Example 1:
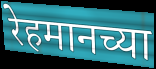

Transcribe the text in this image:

रेहमानच्या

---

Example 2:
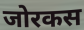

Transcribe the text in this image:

जोरकस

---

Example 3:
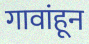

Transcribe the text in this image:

गावांहून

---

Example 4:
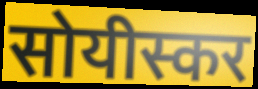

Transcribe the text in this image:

सोयीस्कर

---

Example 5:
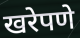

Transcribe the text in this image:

खरेपणे